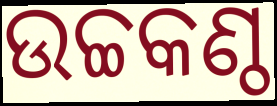
ଉଚ୍ଚକଣ୍ଠ